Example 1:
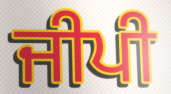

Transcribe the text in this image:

ਜੀਪੀ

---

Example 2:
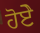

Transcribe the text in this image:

ਹੋਏੇ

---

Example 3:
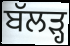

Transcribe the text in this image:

ਬੱਲੜ੍ਹ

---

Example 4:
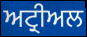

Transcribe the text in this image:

ਅਟ੍ਰੀਅਲ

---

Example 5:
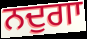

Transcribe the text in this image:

ਨਦੁਗਾ